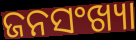
ଜନସଂଖ୍ଯା